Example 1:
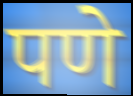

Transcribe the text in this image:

पणे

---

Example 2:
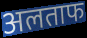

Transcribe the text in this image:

अलताफ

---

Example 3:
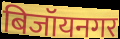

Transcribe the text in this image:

बिजॉयनगर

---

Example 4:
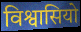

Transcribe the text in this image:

विश्वासियो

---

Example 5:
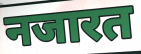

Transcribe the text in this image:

नजारत